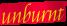
unburnt